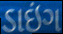
ડાઇંગ